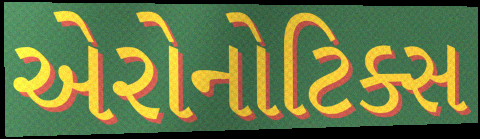
એરોનોટિક્સ